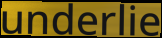
underlie